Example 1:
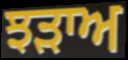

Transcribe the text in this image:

ਝੜਾਅ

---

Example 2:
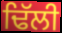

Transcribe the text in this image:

ਢਿੱਲੀ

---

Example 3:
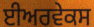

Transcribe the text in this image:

ਈਅਰਵੇਕਸ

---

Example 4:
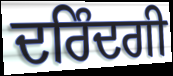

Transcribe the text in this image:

ਦਰਿੰਦਗੀ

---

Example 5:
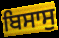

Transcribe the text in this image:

ਬਿਸਾਸੁ